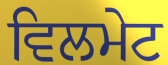
ਵਿਲਮੇਟ